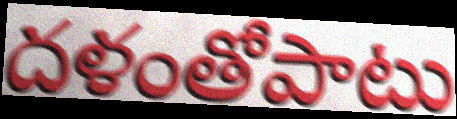
దళంతోపాటు